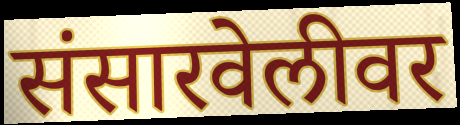
संसारवेलीवर